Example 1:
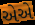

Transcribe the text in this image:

એએ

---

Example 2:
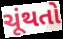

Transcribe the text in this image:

ચૂંથતો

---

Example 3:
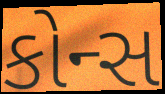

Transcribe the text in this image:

કોન્સ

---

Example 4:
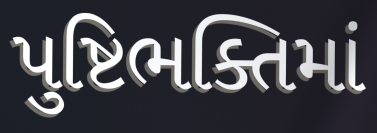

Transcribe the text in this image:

પુષ્ટિભક્તિમાં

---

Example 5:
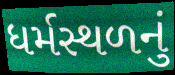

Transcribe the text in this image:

ધર્મસ્થળનું